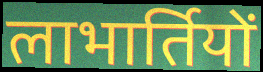
लाभार्तियों